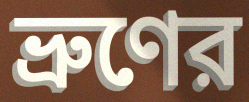
ভ্রুণের